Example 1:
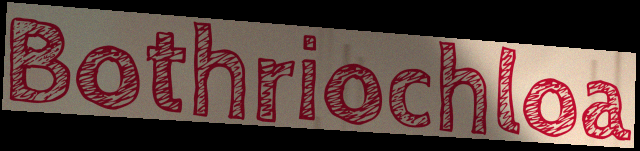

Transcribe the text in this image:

Bothriochloa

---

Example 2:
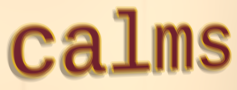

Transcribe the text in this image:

calms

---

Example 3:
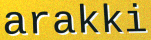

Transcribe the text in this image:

arakki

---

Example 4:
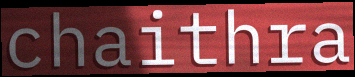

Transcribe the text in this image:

chaithra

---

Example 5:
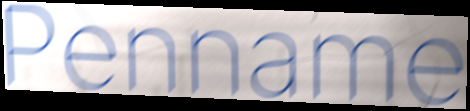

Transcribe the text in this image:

Penname